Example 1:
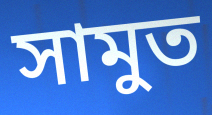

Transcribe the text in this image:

সামুত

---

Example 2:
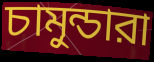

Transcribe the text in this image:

চামুন্ডারা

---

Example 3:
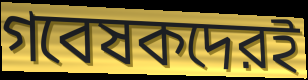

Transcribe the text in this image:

গবেষকদেরই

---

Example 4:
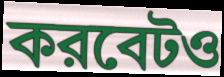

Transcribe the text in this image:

করবেটও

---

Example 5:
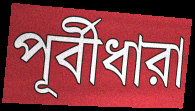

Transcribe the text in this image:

পূর্বীধারা